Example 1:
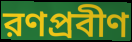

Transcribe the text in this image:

রণপ্রবীণ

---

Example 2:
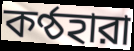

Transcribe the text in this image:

কণ্ঠহারা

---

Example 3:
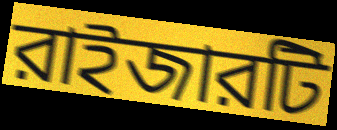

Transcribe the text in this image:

রাইজারটি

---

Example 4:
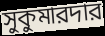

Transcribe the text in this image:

সুকুমারদার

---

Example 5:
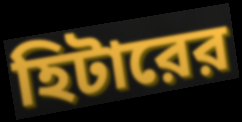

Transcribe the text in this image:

হিটারের